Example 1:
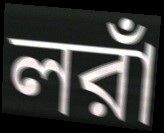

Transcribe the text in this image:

লরাঁ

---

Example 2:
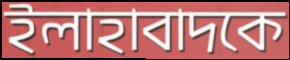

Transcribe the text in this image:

ইলাহাবাদকে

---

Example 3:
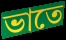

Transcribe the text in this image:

ভাতে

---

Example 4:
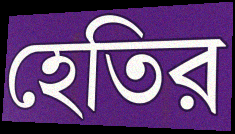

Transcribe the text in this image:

হেতির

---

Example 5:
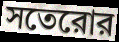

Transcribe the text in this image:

সতেরোর